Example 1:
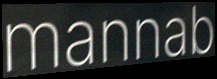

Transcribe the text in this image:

mannab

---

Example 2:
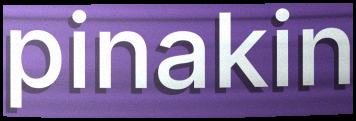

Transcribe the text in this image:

pinakin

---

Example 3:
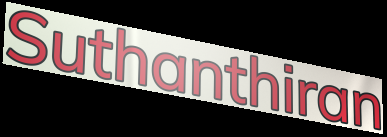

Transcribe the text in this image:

Suthanthiran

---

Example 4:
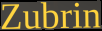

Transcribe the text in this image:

Zubrin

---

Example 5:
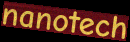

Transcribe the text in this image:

nanotech